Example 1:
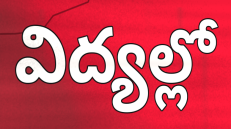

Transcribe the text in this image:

విద్యల్లో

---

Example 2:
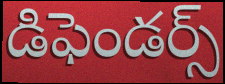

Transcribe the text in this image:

డిఫెండర్స్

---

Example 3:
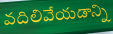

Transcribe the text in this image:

వదిలివేయడాన్ని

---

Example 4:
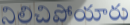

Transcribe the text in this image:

నిలిచిపోయారు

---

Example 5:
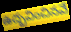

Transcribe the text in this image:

ఉద్భవించినవే